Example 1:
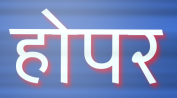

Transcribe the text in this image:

होपर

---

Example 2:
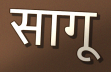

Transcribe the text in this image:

सागू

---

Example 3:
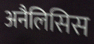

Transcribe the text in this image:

अनैलिसिस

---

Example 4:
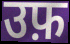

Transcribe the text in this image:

उफ़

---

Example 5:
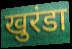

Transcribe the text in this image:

खुरंडा